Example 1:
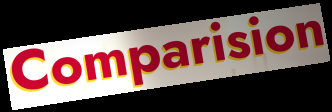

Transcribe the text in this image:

Comparision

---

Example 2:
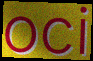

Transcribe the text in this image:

oci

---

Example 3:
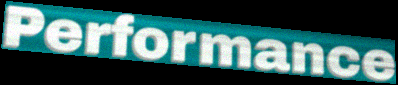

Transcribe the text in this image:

Performance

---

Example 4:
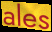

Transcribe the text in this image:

ales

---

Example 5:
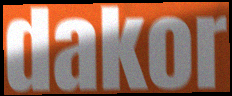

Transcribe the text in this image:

dakor